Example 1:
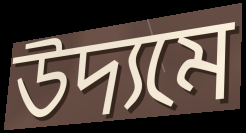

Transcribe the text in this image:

উদ্যমে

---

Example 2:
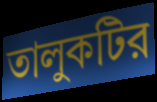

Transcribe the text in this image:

তালুকটির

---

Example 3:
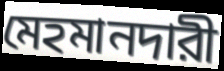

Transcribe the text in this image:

মেহমানদারী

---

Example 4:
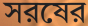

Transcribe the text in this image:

সরষের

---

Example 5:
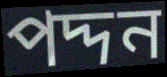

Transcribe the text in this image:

পদ্দন